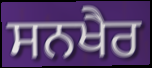
ਸਨਖੈਰ